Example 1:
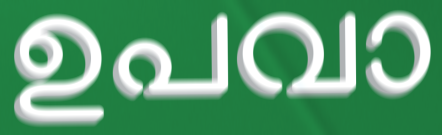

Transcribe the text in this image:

ഉപവാ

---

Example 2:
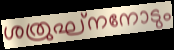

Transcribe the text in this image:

ശത്രുഘ്നനോടും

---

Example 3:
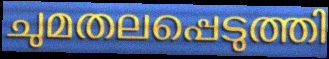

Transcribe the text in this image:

ചുമതലപ്പെടുത്തി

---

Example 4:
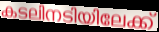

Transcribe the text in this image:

കടലിനടിയിലേക്ക്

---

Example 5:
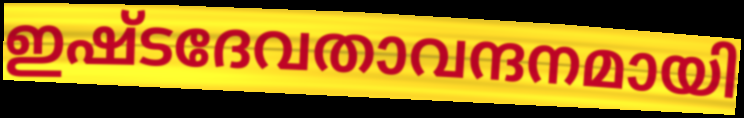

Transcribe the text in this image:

ഇഷ്ടദേവതാവന്ദനമായി